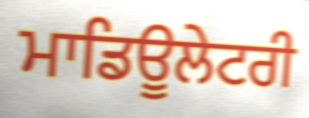
ਮਾਡਿਊਲੇਟਰੀ